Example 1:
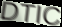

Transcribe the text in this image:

DTIC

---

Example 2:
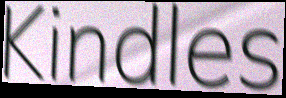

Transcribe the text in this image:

Kindles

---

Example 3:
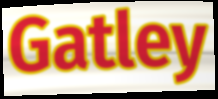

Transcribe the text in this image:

Gatley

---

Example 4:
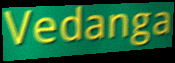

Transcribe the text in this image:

Vedanga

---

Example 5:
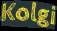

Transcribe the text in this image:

Kolgi